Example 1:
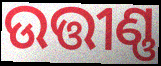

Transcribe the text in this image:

ଉତ୍ତୀଣ୍ଣ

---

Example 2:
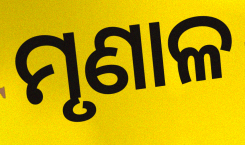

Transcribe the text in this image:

ମୃଣାଳ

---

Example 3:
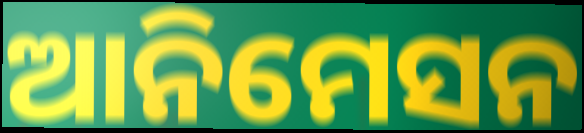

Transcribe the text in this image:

ଆନିମେସନ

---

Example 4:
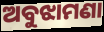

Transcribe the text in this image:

ଅବୁଝାମଣା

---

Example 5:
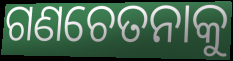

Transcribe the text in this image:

ଗଣଚେତନାକୁ